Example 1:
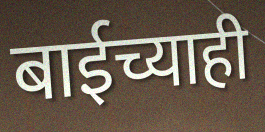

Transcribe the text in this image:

बाईच्याही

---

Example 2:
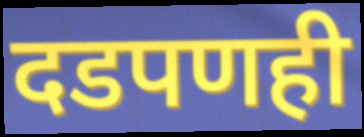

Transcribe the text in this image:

दडपणही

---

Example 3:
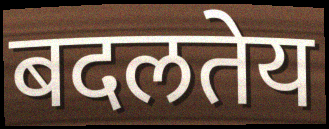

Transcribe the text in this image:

बदलतेय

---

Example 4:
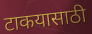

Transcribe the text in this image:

टाकयासाठी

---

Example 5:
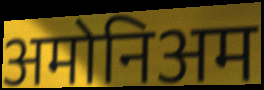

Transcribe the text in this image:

अमोनिअम